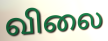
விலை